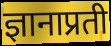
ज्ञानाप्रती